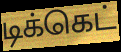
டிக்கெட்